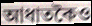
আধাতকৈও